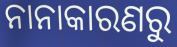
ନାନାକାରଣରୁ